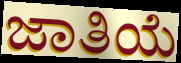
ಜಾತಿಯೆ